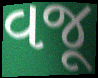
વજૂ